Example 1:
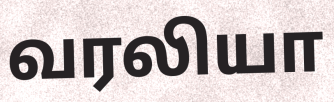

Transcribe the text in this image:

வரலியா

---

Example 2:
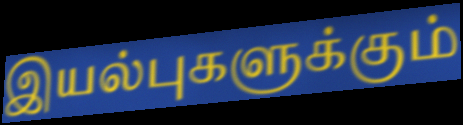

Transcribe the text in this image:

இயல்புகளுக்கும்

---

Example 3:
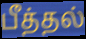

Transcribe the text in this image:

பீத்தல்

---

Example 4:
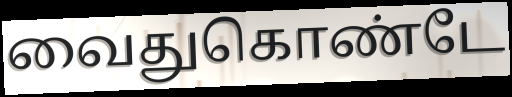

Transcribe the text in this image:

வைதுகொண்டே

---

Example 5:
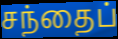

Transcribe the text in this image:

சந்தைப்